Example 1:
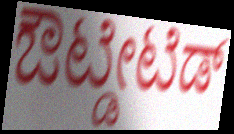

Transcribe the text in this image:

ಔಟ್ಡೇಟೆಡ್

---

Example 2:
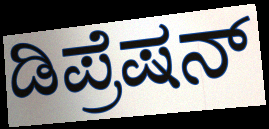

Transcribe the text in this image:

ಡಿಪ್ರೆಷನ್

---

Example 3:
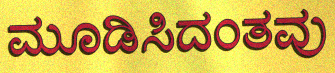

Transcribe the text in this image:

ಮೂಡಿಸಿದಂತವು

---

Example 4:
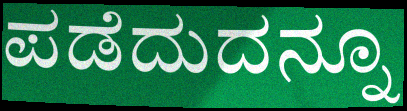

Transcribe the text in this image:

ಪಡೆದುದನ್ನೂ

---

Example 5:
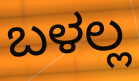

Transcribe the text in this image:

ಬಳಲ್ಲ